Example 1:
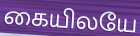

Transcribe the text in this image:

கையிலயே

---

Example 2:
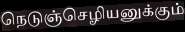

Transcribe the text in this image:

நெடுஞ்செழியனுக்கும்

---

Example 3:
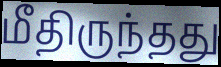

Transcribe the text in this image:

மீதிருந்தது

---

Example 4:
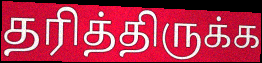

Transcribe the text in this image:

தரித்திருக்க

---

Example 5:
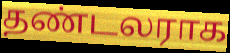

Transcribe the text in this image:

தண்டலராக